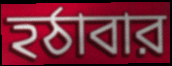
হঠাবার